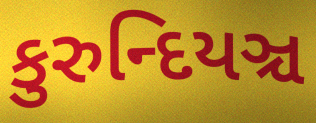
કુરુન્દિયઞ્ચ